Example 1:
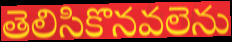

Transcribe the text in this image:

తెలిసికొనవలెను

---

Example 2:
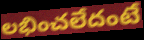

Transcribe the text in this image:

లభించలేదంటే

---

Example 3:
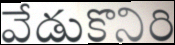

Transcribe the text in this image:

వేడుకొనిరి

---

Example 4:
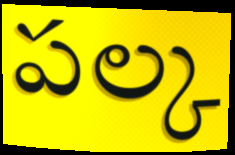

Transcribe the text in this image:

పల్క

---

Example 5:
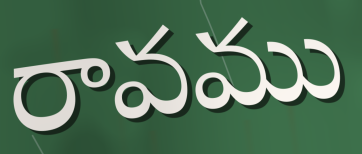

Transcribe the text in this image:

రావము